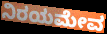
ನಿರಯಮೇವ